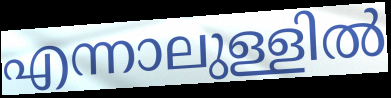
എന്നാലുള്ളിൽ